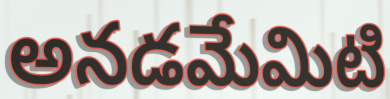
అనడమేమిటి